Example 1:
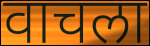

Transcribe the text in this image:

वाचला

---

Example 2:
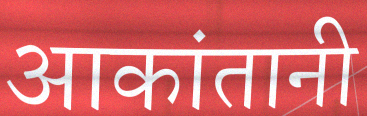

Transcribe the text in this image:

आकांतानी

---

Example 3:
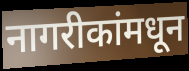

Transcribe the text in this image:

नागरीकांमधून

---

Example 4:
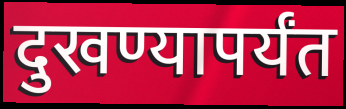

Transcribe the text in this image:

दुखण्यापर्यंत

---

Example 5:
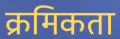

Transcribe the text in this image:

क्रमिकता